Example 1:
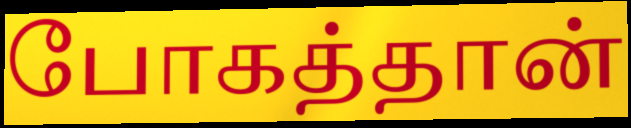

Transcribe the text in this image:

போகத்தான்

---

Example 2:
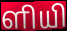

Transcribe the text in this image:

ளியி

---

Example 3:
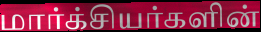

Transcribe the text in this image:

மார்க்சியர்களின்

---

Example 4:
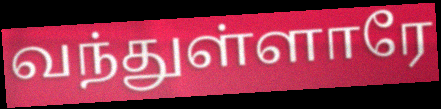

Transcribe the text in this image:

வந்துள்ளாரே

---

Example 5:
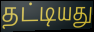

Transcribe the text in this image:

தட்டியது